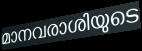
മാനവരാശിയുടെ